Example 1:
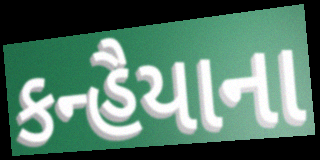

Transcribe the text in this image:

કન્હૈયાના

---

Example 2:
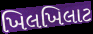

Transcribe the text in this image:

ખિલખિલાટ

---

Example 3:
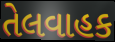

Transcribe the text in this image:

તેલવાહક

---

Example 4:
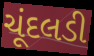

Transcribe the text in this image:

ચૂંદલડી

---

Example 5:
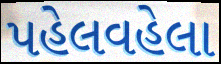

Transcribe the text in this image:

પહેલવહેલા